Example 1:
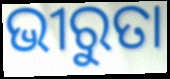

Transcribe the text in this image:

ଭୀରୁତା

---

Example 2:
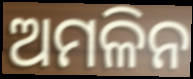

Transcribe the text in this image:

ଅମଳିନ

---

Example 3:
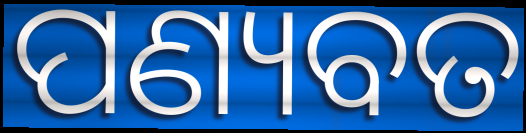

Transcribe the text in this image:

ପଣ୍ୟବତ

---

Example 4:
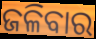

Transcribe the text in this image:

ଜଳିବାର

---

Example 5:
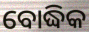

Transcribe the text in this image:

ବୋଦ୍ଧିକ